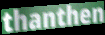
thanthen